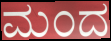
ಮಂದ